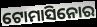
ଟୋମାସିନୋର